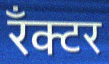
रँक्टर